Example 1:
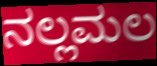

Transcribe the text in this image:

ನಲ್ಲಮಲ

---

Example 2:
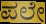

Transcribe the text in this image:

ಪಲೇ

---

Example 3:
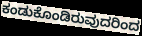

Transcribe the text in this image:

ಕಂಡುಕೊಂಡಿರುವುದರಿಂದ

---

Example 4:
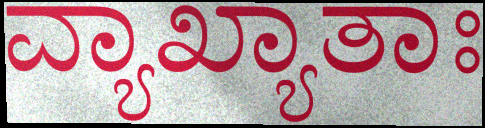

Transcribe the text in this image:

ವ್ಯಾಖ್ಯಾತಾಃ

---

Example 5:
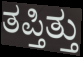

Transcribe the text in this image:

ತಪ್ತಿತ್ತು